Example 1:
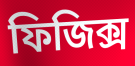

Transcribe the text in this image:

ফিজিক্স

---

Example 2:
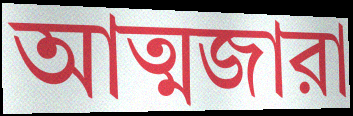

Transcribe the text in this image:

আত্মজারা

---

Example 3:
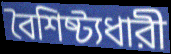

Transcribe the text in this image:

বৈশিষ্ট্যধারী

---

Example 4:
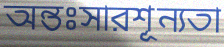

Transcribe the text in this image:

অন্তঃসারশূন্যতা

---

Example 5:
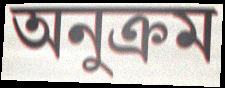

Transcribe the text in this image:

অনুক্রম